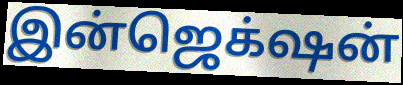
இன்ஜெக்‌ஷன்